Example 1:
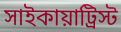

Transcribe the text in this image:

সাইকায়াট্রিস্ট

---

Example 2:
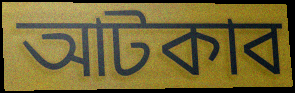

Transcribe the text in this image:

আটকাব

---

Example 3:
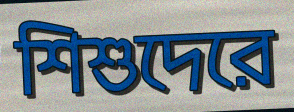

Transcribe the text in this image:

শিশুদেরে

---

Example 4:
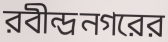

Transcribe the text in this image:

রবীন্দ্রনগরের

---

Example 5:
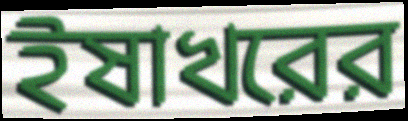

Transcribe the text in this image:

ইষাখরের